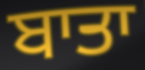
ਬਾਤਾ